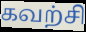
கவற்சி